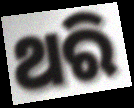
ଥରି